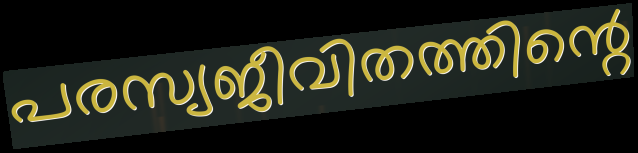
പരസ്യജീവിതത്തിന്റെ